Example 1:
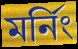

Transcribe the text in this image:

মর্নিং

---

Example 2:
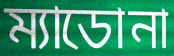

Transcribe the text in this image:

ম্যাডোনা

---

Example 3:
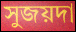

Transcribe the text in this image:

সুজয়দা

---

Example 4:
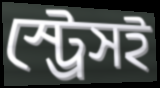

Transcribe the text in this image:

স্ট্রেসই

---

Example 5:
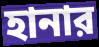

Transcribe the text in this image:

হানার